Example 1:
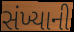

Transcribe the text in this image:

સંખ્યાની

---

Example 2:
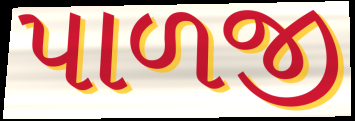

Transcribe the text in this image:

પાળજી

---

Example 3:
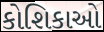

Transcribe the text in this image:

કોશિકાઓ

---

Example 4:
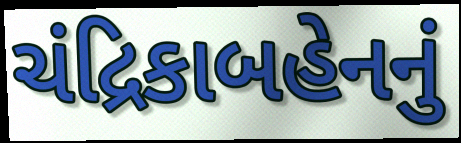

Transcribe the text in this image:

ચંદ્રિકાબહેનનું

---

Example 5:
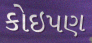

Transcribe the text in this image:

કોઇપણ